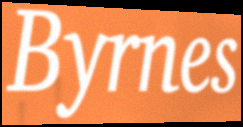
Byrnes